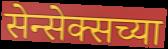
सेन्सेक्सच्या